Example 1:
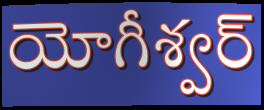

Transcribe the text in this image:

యోగీశ్వర్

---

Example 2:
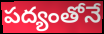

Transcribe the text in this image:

పద్యంతోనే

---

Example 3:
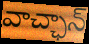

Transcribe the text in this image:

వాచ్ఛాన్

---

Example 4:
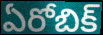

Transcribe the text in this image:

ఏరోబిక్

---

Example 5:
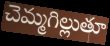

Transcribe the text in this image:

చెమ్మగిల్లుతూ